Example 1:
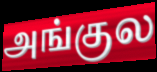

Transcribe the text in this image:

அங்குல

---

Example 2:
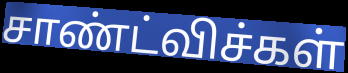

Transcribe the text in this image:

சாண்ட்விச்கள்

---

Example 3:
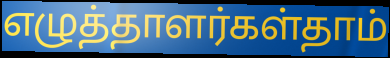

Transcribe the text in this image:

எழுத்தாளர்கள்தாம்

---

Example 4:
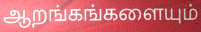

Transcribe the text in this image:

ஆறங்கங்களையும்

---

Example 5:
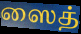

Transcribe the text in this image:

ஸைத்